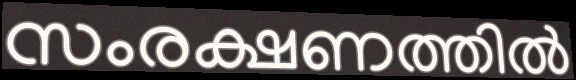
സംരക്ഷണത്തിൽ